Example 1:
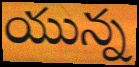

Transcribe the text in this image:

యున్న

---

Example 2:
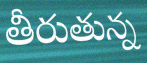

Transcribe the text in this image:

తీరుతున్న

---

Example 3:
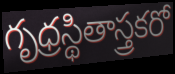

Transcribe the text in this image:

గృధ్రస్థితాస్త్రకరో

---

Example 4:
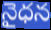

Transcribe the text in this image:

నైధన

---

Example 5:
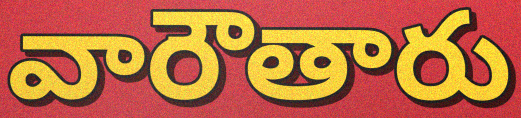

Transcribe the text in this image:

వారౌతారు